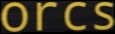
orcs